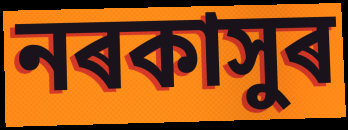
নৰকাসুৰ